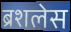
ब्रशलेस